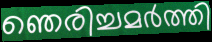
ഞെരിച്ചമർത്തി